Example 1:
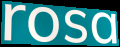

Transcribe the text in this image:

rosa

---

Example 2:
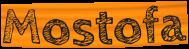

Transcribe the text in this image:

Mostofa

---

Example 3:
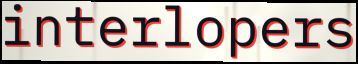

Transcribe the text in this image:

interlopers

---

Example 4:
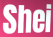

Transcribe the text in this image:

Shei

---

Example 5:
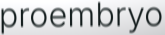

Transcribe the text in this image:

proembryo